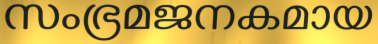
സംഭ്രമജനകമായ